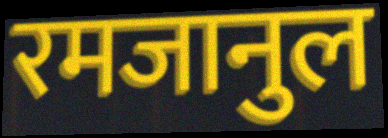
रमजानुल